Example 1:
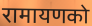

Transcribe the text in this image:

रामायणको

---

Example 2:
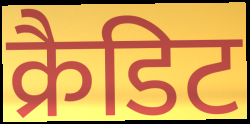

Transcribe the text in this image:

क्रैडिट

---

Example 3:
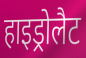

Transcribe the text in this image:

हाइड्रोलैट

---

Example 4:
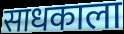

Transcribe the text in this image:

साधकाला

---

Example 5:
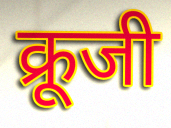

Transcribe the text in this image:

क्रूजी